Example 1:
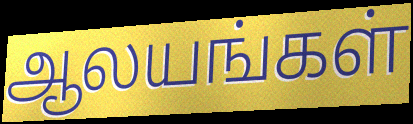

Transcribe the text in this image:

ஆலயங்கள்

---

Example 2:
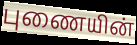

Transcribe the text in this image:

புணையின்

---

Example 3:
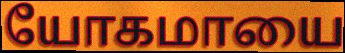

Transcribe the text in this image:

யோகமாயை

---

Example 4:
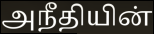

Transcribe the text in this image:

அநீதியின்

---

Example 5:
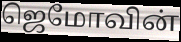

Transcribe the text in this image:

ஜெமோவின்